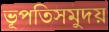
ভূপতিসমুদয়